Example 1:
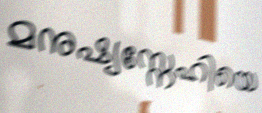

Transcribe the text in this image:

മനുഷ്യസ്നേഹിയെ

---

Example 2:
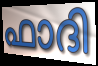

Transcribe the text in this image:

ഫാദി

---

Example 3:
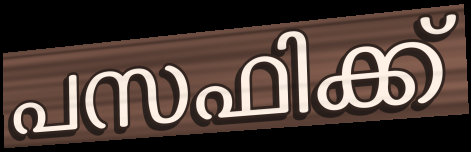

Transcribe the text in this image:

പസഫിക്ക്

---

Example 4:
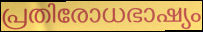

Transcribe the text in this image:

പ്രതിരോധഭാഷ്യം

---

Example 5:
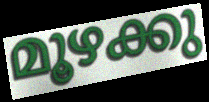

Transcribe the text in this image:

മൂഴക്കു